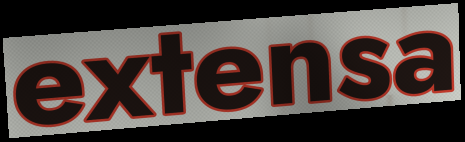
extensa